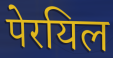
पेरयिल